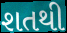
શતથી